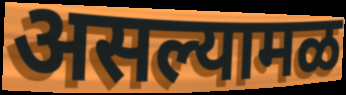
असल्यामळ